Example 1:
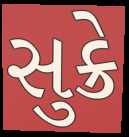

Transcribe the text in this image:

સુક્રે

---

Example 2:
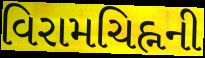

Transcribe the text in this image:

વિરામચિહ્નની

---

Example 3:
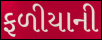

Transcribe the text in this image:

ફળીયાની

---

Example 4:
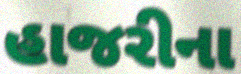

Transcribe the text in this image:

હાજરીના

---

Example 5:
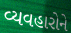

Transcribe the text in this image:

વ્યવહારોને